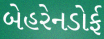
બેહરેનડોર્ફ